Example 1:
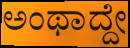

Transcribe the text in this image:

ಅಂಥಾದ್ದೇ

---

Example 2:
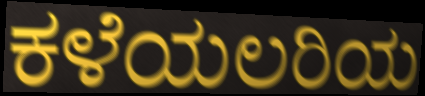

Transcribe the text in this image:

ಕಳೆಯಲರಿಯ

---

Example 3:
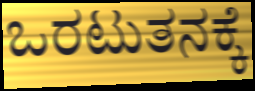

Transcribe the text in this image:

ಒರಟುತನಕ್ಕೆ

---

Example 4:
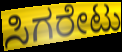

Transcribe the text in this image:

ಸಿಗರೇಟು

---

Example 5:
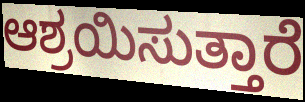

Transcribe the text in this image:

ಆಶ್ರಯಿಸುತ್ತಾರೆ